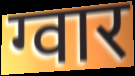
ग्वार